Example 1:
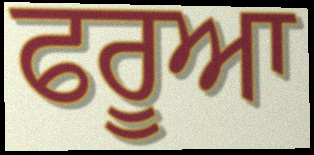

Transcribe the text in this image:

ਫਰੂਆ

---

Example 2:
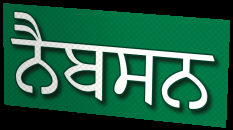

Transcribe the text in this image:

ਨੈਬਸਨ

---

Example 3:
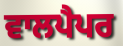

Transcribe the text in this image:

ਵਾਲਪੈਪਰ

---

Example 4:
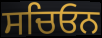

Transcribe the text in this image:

ਸਚਿਓਨ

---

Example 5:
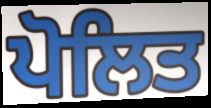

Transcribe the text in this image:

ਪੋਲਿਤ